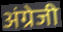
अंग्रेजी